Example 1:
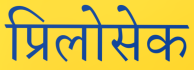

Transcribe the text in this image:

प्रिलोसेक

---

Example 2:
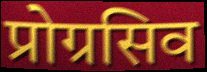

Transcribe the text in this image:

प्रोग्रसिव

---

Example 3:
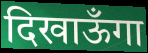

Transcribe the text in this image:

दिखाऊँगा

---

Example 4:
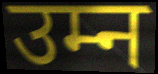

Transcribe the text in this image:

उम्न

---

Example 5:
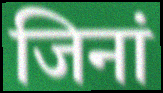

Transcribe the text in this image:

जिनां